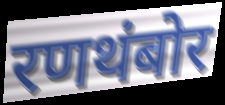
रणथंबोर